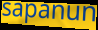
sapanun